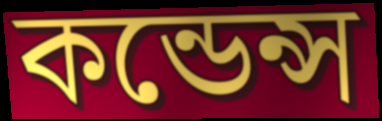
কন্ডেন্স